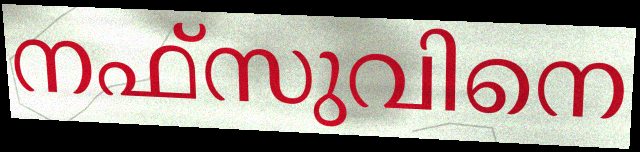
നഫ്സുവിനെ